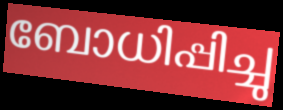
ബോധിപ്പിച്ചു